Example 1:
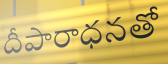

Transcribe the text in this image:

దీపారాధనతో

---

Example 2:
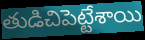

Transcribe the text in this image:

తుడిచిపెట్టేశాయి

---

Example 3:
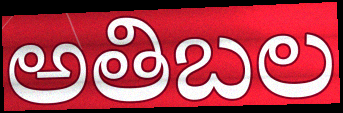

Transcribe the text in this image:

అతిబల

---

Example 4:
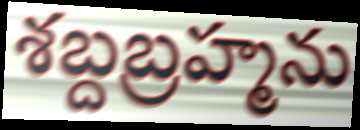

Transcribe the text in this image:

శబ్దబ్రహ్మను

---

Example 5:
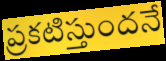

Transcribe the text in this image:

ప్రకటిస్తుందనే